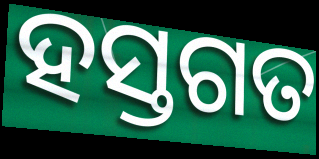
ହସ୍ତଗତ